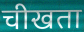
चीखता